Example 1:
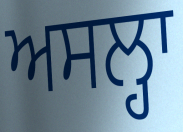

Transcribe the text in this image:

ਅਸਲ੍ਹਾ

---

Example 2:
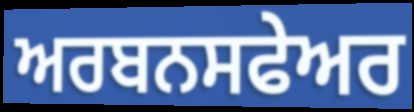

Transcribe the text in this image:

ਅਰਬਨਸਫੇਅਰ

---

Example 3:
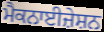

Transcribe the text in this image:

ਮੈਕਨਾਈਜ਼ੇਸ਼ਨ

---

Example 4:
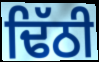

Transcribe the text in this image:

ਢਿੱਠੀ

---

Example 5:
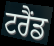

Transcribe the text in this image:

ਟਰੈਂਡ